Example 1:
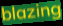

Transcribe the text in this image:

blazing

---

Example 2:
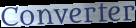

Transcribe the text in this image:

Converter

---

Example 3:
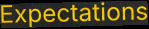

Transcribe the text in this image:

Expectations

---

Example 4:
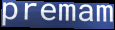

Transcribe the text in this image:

premam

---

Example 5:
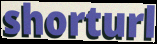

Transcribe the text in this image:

shorturl